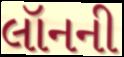
લૉનની